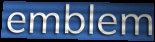
emblem